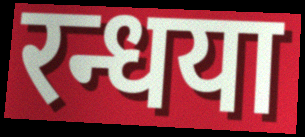
रन्धया